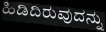
ಹಿಡಿದಿರುವುದನ್ನು